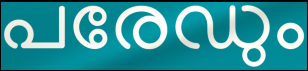
പരേഡും